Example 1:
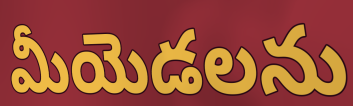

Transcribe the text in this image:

మీయెడలను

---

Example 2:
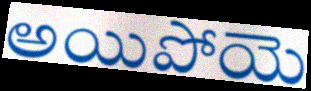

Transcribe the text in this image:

అయిపోయె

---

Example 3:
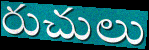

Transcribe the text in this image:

రుచులు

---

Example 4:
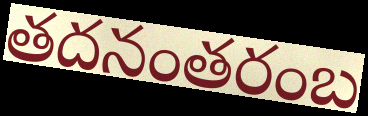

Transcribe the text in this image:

తదనంతరంబ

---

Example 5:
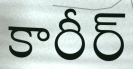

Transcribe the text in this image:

కారీర్